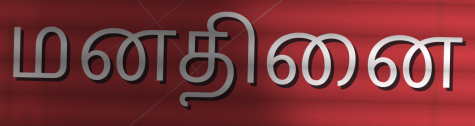
மனதினை